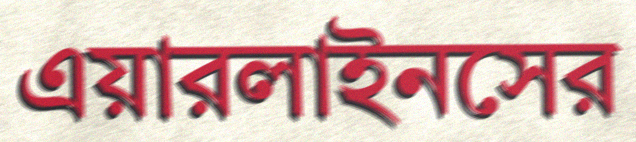
এয়ারলাইনসের